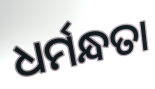
ଧର୍ମନ୍ଧତା